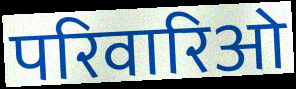
परिवारिओ